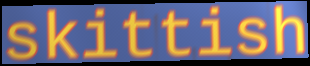
skittish